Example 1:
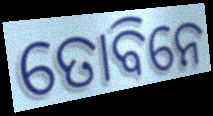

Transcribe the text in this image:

ତୋବିନେ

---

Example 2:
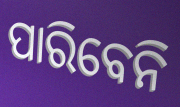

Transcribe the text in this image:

ପାରିବେନି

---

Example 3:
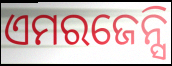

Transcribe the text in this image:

ଏମରଜେନ୍ସି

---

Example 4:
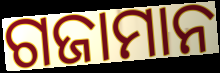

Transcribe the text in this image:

ଗଜାମାନ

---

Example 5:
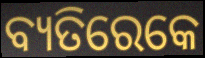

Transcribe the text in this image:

ବ୍ୟତିରେକେ